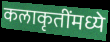
कलाकृतींमध्ये